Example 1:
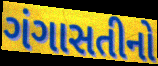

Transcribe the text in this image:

ગંગાસતીનો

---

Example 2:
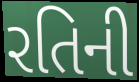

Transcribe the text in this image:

રતિની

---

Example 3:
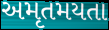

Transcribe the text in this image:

અમૃતમયતા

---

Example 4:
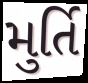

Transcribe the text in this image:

મુર્તિ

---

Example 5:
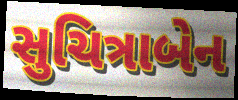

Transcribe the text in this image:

સુચિત્રાબેન